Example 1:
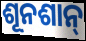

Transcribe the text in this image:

ଶୂନଶାନ୍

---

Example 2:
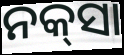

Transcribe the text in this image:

ନକ୍‍ସା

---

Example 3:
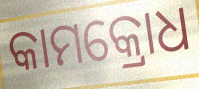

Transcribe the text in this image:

କାମକ୍ରୋଧ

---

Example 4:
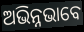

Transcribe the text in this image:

ଅଭିନ୍ନଭାବେ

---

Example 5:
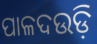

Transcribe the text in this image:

ପାଳଦଉଡ଼ି